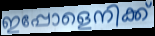
ഇപ്പോളെനിക്ക്